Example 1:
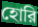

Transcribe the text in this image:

হোরি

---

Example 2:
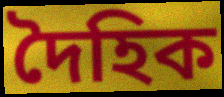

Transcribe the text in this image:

দৈহিক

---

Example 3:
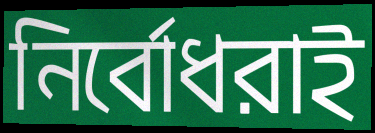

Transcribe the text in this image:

নির্বোধরাই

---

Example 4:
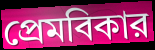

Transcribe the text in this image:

প্রেমবিকার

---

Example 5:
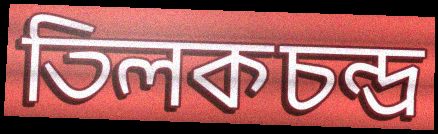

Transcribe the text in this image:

তিলকচন্দ্র